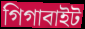
গিগাবাইট